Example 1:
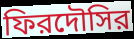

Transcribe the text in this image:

ফিরদৌসির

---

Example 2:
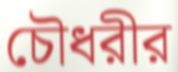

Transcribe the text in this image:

চৌধরীর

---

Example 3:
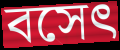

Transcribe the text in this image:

বসেৎ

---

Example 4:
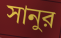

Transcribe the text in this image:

সানুর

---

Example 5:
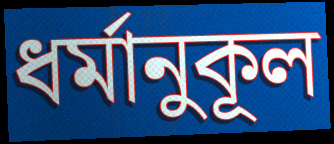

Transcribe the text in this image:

ধর্মানুকূল